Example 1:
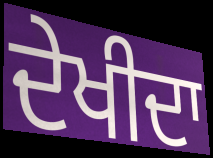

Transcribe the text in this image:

ਦੇਖੀਦਾ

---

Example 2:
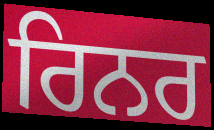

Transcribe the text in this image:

ਰਿਨਰ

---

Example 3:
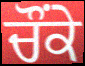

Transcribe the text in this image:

ਚੌਂਕੇ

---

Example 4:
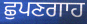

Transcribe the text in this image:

ਛੁਪਣਗਾਹ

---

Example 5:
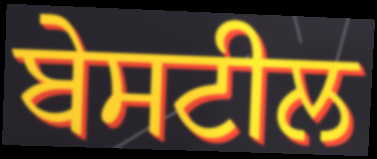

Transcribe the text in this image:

ਬੇਸਟੀਲ